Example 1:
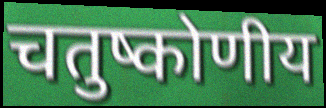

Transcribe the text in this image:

चतुष्कोणीय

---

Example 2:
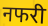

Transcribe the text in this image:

नफरी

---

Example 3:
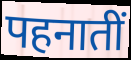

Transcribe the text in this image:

पहनातीं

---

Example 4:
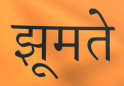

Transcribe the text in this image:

झूमते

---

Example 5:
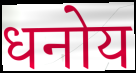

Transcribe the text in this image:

धनोय